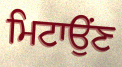
ਮਿਟਾਉਂਣ